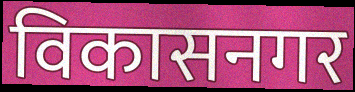
विकासनगर